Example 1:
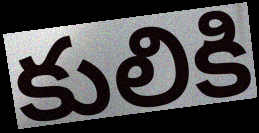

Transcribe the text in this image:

కులికి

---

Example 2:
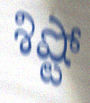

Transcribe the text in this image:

శిష్టో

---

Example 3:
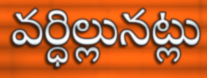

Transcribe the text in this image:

వర్ధిల్లునట్లు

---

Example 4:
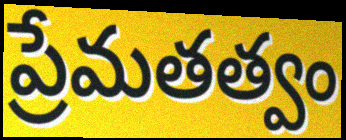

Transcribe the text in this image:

ప్రేమతత్వం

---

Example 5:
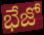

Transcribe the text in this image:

భేజో